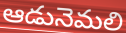
ఆడునెమలి